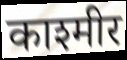
काश्मीर